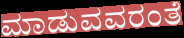
ಮಾಡುವವರಂತೆ